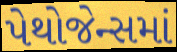
પેથોજેન્સમાં